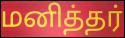
மனித்தர்